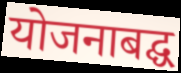
योजनाबद्घ